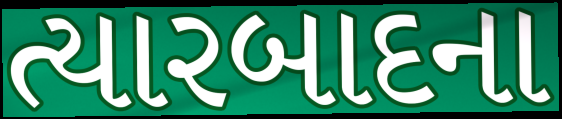
ત્યારબાદના